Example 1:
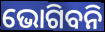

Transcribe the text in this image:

ଭୋଗିବନି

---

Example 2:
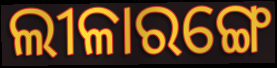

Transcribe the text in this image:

ଲୀଳାରଙ୍ଗେ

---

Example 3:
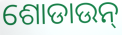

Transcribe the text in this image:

ଶୋଡାଉନ୍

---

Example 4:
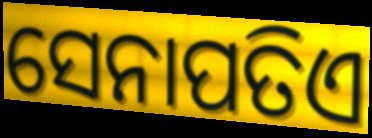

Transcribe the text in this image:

ସେନାପତିଏ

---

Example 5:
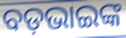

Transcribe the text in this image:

ବଡ଼ଭାଇଙ୍କ